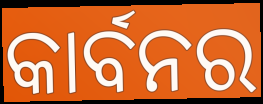
କାର୍ବନର